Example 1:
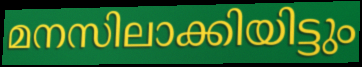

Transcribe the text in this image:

മനസിലാക്കിയിട്ടും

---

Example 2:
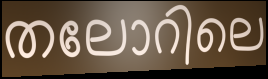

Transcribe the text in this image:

തലോറിലെ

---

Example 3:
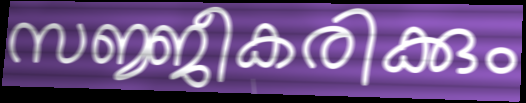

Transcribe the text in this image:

സജ്ജീകരിക്കും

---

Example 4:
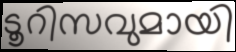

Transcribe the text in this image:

ടൂറിസവുമായി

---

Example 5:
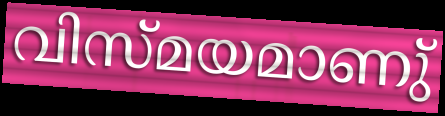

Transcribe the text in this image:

വിസ്മയമാണു്